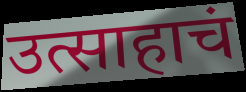
उत्साहाचं